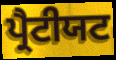
ਪ੍ਰੈਟੀਯਟ